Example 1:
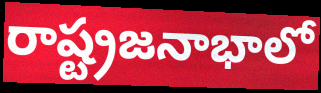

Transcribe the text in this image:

రాష్ట్రజనాభాలో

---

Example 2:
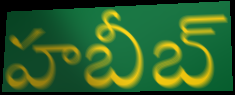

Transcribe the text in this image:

హబీబ్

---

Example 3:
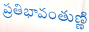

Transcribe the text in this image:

ప్రతిభావంతుణ్ణి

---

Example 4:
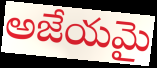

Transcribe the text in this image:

అజేయమై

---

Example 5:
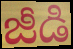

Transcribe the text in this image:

జీడి